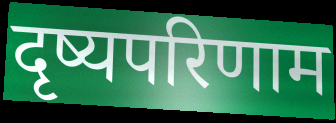
दृष्यपरिणाम